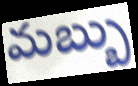
మబ్బు